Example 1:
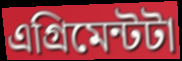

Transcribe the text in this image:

এগ্রিমেন্টটা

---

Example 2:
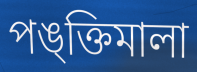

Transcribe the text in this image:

পঙ্ক্তিমালা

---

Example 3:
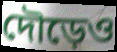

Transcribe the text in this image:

দৌড়েও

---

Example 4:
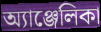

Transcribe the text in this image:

অ্যাঞ্জেলিকা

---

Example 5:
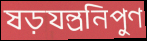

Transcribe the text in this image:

ষড়যন্ত্রনিপুণ